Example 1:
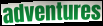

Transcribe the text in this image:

adventures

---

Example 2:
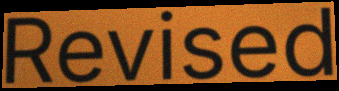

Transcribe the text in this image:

Revised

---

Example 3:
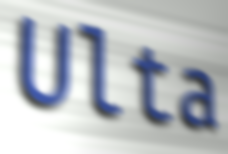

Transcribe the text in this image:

Ulta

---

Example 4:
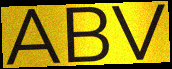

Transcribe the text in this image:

ABV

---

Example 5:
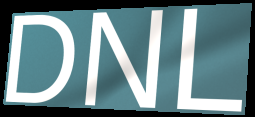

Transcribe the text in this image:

DNL